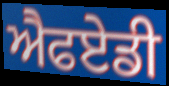
ਐਫਏਡੀ